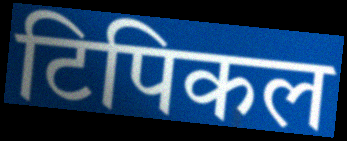
टिपिकल